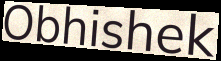
Obhishek